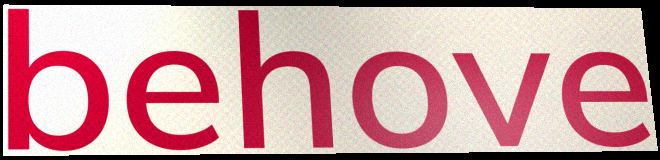
behove